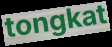
tongkat